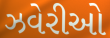
ઝવેરીઓ